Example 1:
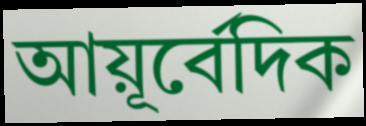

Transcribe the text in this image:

আয়ূর্বেদিক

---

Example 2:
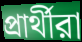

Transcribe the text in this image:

প্রার্থীরা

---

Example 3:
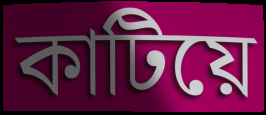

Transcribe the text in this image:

কাটিয়ে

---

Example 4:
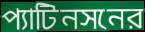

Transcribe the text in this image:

প্যাটিনসনের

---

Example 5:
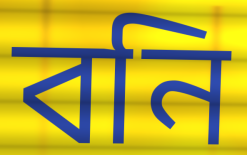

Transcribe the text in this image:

বনি